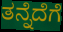
ತನ್ನೆದೆಗೆ